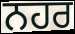
ਨਹਰ